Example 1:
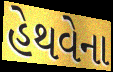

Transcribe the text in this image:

હેથવેના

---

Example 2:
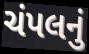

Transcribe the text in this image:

ચંપલનું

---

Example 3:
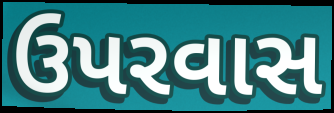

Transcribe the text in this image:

ઉપરવાસ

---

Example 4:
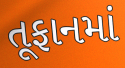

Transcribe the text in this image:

તૂફાનમાં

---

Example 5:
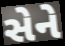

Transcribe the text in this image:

સેને